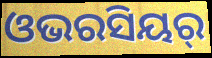
ଓଭରସିୟର୍